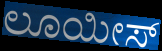
ಲೂಯೀಸ್